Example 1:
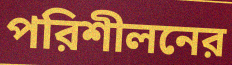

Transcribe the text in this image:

পরিশীলনের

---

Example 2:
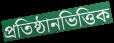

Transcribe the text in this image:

প্রতিষ্ঠানভিত্তিক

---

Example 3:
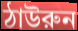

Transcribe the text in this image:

ঠাউরুন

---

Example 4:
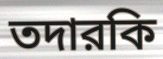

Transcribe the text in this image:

তদারকি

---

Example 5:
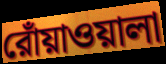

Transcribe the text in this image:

রোঁয়াওয়ালা